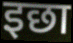
इछा